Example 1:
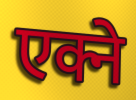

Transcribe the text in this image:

एक्ने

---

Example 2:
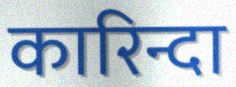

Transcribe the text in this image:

कारिन्दा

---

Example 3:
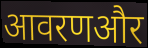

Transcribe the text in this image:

आवरणऔर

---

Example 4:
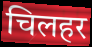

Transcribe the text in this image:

चिलहर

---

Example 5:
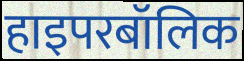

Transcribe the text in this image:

हाइपरबॉलिक